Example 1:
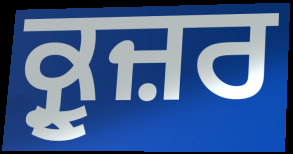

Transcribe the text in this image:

ਕ੍ਰੂਜ਼ਰ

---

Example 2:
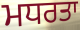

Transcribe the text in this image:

ਮਧਰਤਾ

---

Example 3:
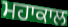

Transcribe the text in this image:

ਮਹਾਕਾਲ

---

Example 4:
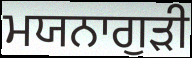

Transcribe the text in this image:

ਮਯਨਾਗੁੜੀ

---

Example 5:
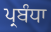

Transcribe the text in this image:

ਪ੍ਰਬੰਧਾ